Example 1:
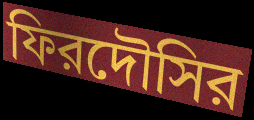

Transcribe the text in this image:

ফিরদৌসির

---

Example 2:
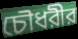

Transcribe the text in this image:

চৌধরীর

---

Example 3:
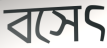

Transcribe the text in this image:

বসেৎ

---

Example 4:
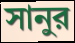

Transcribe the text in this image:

সানুর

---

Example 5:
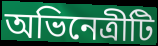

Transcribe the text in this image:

অভিনেত্রীটি